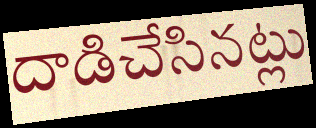
దాడిచేసినట్లు